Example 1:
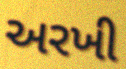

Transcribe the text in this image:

અરખી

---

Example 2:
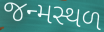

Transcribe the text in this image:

જન્મસ્થળ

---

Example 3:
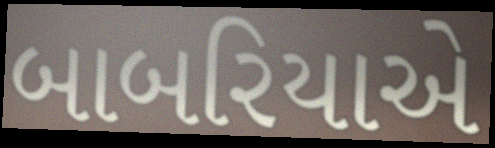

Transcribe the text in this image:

બાબરિયાએ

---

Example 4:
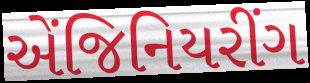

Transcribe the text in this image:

એંજિનિયરીંગ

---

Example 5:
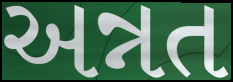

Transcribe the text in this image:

અન્નત